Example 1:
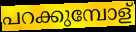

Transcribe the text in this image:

പറക്കുമ്പോള്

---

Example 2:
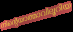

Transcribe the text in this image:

നിന്റെയാത്മാവിലൂറിയ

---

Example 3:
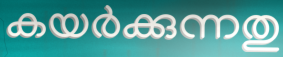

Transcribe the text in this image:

കയർക്കുന്നതു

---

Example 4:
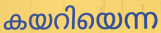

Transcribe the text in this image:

കയറിയെന്ന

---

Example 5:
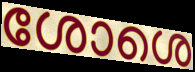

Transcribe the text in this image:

ശോശെ